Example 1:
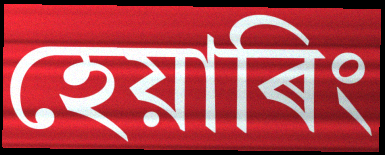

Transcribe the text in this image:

হেয়াৰিং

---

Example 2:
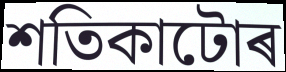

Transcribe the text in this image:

শতিকাটোৰ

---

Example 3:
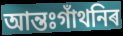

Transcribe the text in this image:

আন্তঃগাঁথনিৰ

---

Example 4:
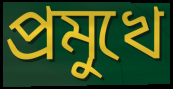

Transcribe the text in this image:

প্ৰমুখে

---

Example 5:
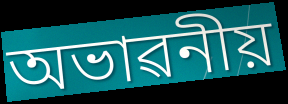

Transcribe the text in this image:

অভাৱনীয়